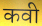
कवी